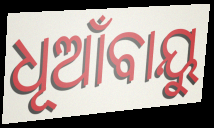
ଧୂଆଁବାୟୁ